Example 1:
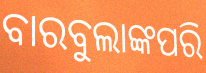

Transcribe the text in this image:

ବାରବୁଲାଙ୍କପରି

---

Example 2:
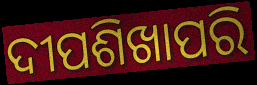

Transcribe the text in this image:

ଦୀପଶିଖାପରି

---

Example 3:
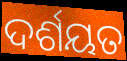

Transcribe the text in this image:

ଦର୍ଶୟତ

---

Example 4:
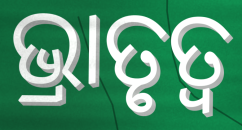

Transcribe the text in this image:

ଭ୍ରାତୃତ୍ଵ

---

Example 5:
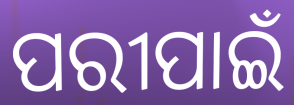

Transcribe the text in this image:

ପରୀପାଇଁ